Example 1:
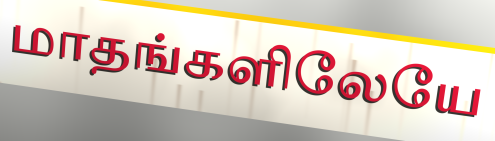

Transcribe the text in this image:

மாதங்களிலேயே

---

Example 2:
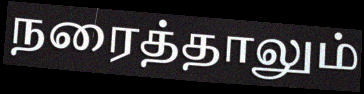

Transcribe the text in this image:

நரைத்தாலும்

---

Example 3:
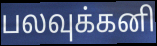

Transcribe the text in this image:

பலவுக்கனி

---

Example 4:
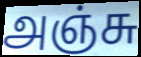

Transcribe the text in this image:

அஞ்சு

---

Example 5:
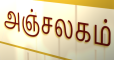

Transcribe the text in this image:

அஞ்சலகம்